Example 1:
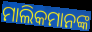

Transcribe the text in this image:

ମାଲିକମାନଙ୍କ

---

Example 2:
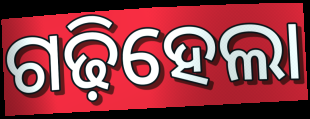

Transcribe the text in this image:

ଗଢ଼ିହେଲା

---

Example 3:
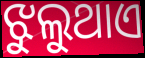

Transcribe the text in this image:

ଝୁଲୁଥାଏ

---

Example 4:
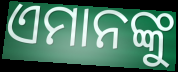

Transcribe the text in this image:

ଏମାନଙ୍କୁ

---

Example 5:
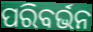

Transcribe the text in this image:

ପରିବର୍ଭନ